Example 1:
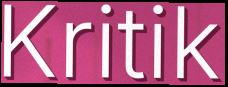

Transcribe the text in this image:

Kritik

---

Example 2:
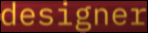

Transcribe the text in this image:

designer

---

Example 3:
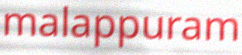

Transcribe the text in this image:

malappuram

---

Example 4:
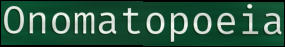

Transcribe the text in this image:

Onomatopoeia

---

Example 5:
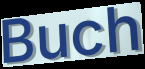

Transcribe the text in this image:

Buch